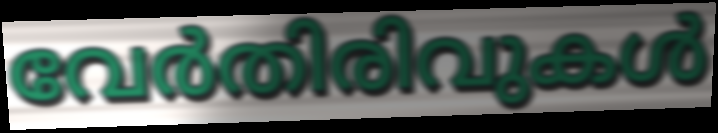
വേർതിരിവുകൾ